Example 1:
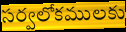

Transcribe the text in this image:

సర్వలోకములకు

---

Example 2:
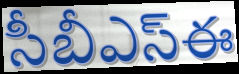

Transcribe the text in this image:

సీబీఎస్ఈ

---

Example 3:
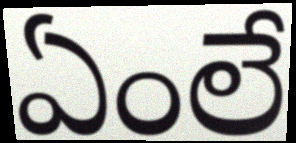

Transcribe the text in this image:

ఏంలే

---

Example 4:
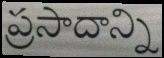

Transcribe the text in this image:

ప్రసాదాన్ని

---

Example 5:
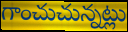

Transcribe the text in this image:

గాంచుచున్నట్లు